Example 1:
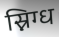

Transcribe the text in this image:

स्निग्ध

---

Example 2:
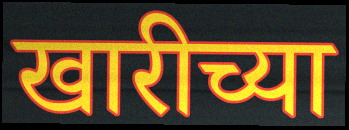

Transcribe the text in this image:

खारीच्या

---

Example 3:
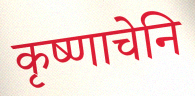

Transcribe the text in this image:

कृष्णाचेनि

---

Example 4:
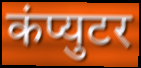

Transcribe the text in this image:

कंप्युटर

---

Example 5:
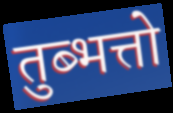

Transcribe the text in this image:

तुब्भत्तो